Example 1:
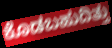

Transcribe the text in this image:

ಕೊಡಬಹುದಿತ್ತು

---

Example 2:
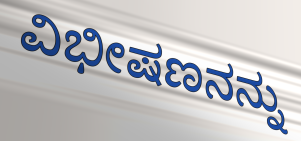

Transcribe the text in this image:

ವಿಭೀಷಣನನ್ನು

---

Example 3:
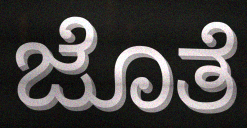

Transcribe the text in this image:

ಜೊತೆ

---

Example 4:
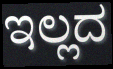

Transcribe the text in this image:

ಇಲ್ಲದ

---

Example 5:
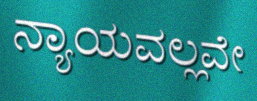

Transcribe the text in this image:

ನ್ಯಾಯವಲ್ಲವೇ